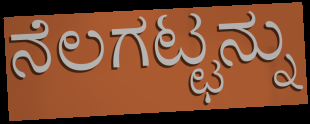
ನೆಲಗಟ್ಟನ್ನು